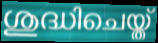
ശുദ്ധിചെയ്ത്